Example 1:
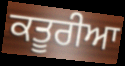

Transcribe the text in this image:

ਕਤੂਰੀਆ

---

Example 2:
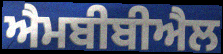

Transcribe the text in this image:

ਐਮਬੀਬੀਐਲ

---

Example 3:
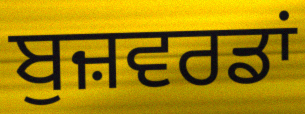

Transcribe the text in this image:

ਬੁਜ਼ਵਰਡਾਂ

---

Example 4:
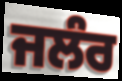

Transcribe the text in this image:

ਜਲੰਰ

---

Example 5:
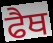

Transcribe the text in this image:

ਫੈਥ